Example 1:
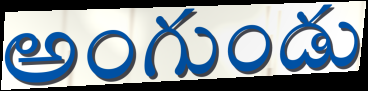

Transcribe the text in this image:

అంగుండు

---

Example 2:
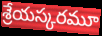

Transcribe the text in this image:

శ్రేయస్కరమూ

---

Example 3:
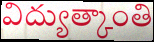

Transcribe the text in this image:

విద్యుత్కాంతి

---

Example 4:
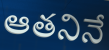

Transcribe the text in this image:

ఆతనినే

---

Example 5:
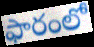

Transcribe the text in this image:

ఫారంలో